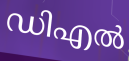
ഡിഎൽ